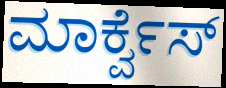
ಮಾರ್ಕ್ವೆಸ್